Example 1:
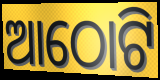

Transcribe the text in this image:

ଆଠୋଟି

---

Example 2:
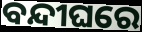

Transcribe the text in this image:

ବନ୍ଦୀଘରେ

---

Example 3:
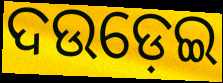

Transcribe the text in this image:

ଦଉଡ଼େଇ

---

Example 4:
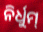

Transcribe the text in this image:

ନିର୍ଧୁମ୍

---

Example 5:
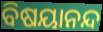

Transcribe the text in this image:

ବିଷୟାନନ୍ଦ